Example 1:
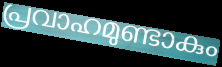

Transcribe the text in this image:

പ്രവാഹമുണ്ടാകും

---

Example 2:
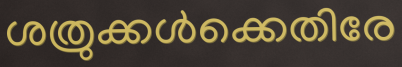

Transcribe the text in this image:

ശത്രുക്കൾക്കെതിരേ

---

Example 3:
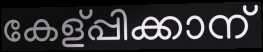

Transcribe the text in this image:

കേള്പ്പിക്കാന്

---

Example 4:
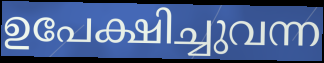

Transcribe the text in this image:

ഉപേക്ഷിച്ചുവന്ന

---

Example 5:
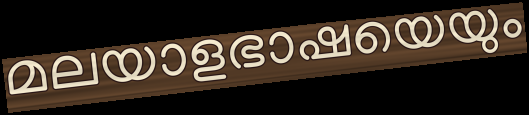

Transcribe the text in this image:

മലയാളഭാഷയെയും